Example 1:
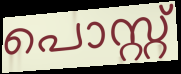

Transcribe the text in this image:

പൊസ്റ്റ്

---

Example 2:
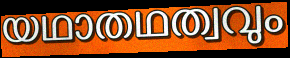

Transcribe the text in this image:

യഥാതഥത്വവും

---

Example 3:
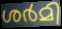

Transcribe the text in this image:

ശർമി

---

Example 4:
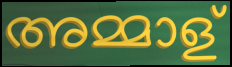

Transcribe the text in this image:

അമ്മാള്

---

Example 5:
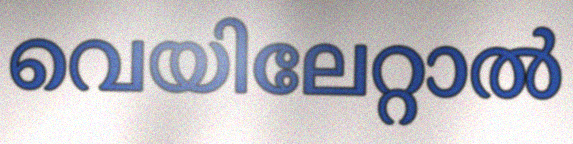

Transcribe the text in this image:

വെയിലേറ്റാൽ